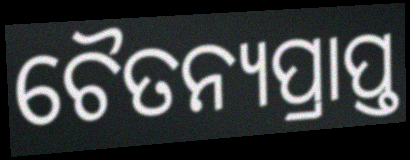
ଚୈତନ୍ୟପ୍ରାପ୍ତ